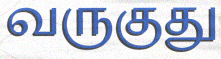
வருகுது